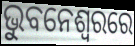
ଭୁବନେଶ୍ବରରେ